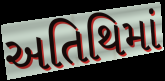
અતિથિમાં